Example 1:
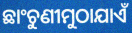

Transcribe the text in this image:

ଛାଂଚୁଣୀମୁଠାଯାଏଁ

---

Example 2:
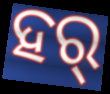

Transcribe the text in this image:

ହର୍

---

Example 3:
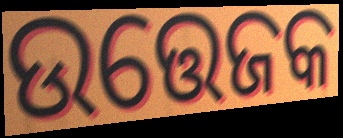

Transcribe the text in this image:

ଉତ୍ତେଜକ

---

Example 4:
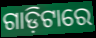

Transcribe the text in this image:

ଗାଡ଼ିଟାରେ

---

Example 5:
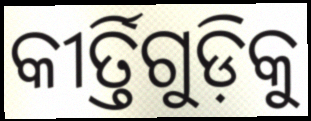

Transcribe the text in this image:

କୀର୍ତ୍ତିଗୁଡ଼ିକୁ